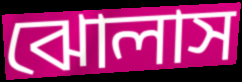
ঝোলাস